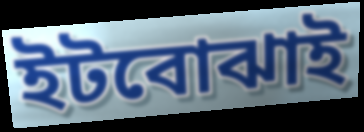
ইটবোঝাই